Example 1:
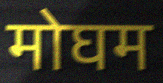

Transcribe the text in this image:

मोघम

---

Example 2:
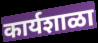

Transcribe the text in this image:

कार्यशाळा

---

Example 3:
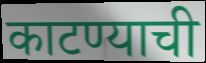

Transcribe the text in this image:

काटण्याची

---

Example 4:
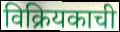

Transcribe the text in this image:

विक्रियकाची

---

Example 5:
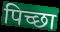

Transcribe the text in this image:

पिच्छा